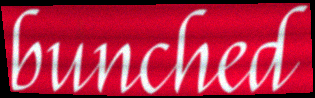
bunched